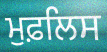
ਮੁਫ਼ਲਿਸ